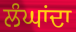
ਲੰਘਾਂਦਾ